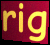
rig